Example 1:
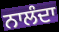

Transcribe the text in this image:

ਨਾਲੰਦਾ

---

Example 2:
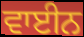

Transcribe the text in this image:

ਵਾਈਨ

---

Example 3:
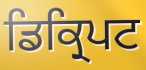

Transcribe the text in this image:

ਡਿਕ੍ਰਿਪਟ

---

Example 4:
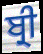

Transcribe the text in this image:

ਬ੍ਰੀ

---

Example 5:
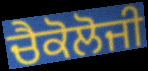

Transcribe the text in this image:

ਚੈਕੋਲੋਜੀ